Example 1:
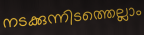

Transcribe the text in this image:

നടക്കുന്നിടത്തെല്ലാം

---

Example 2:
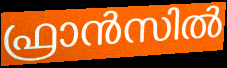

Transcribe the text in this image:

ഫ്രാൻസിൽ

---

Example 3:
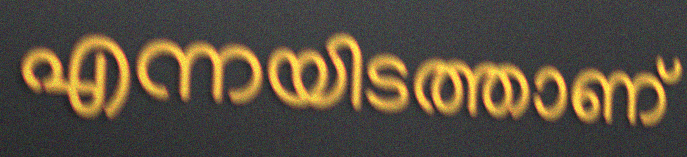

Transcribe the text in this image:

എന്നയിടത്താണ്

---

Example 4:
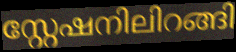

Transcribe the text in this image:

സ്റ്റേഷനിലിറങ്ങി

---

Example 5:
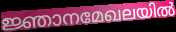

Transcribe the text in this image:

ജ്ഞാനമേഖലയിൽ